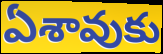
ఏశావుకు